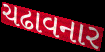
ચઢાવનાર